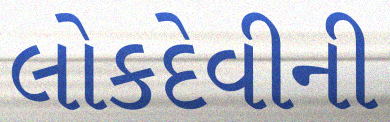
લોકદેવીની